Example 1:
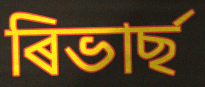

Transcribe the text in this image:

ৰিভাৰ্ছ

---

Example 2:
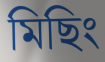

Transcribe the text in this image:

মিছিং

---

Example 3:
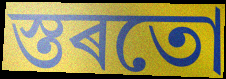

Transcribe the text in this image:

স্তৰতো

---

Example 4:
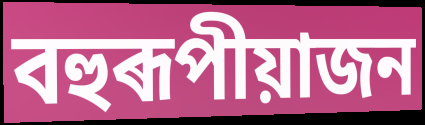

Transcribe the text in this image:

বহুৰূপীয়াজন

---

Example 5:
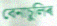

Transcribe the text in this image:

বেনাচুলিৰ